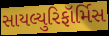
સાયલ્યુરિફૉર્મિસ